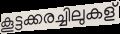
കൂട്ടക്കരച്ചിലുകള്